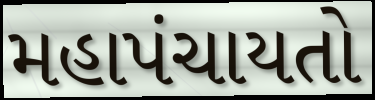
મહાપંચાયતો